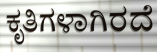
ಕೃತಿಗಳಾಗಿರದೆ